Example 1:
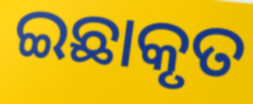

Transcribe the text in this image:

ଇଛାକୃତ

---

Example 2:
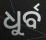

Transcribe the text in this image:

ଧୁର୍ବ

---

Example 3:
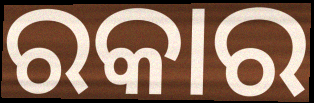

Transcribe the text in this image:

ରକାର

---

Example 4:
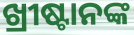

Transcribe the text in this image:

ଖ୍ରୀଷ୍ଟାନଙ୍କ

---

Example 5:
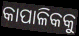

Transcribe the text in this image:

କାପାଳିକକୁ